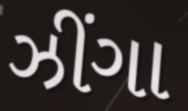
ઝીંગા